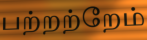
பற்றற்றேம்